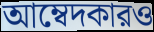
আম্বেদকারও